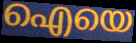
ഐയെ